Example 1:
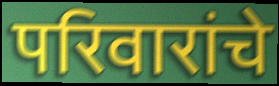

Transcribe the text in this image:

परिवारांचे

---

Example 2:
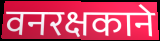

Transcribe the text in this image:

वनरक्षकाने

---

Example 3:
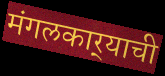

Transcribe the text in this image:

मंगलकार्याची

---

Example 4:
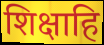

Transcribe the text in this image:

शिक्षाहि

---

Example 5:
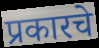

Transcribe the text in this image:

प्रकारचे